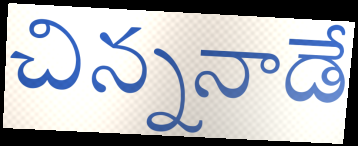
చిన్ననాడే